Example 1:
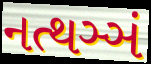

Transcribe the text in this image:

નત્થઞ્ઞં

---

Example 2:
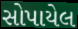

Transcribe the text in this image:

સોપાયેલ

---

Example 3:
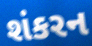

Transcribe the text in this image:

શંકરન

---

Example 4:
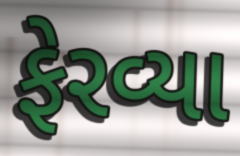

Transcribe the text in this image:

ફેરવ્યા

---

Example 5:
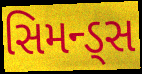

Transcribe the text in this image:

સિમન્ડ્સ